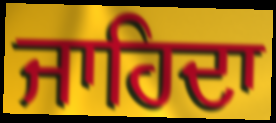
ਜਾਹਿਦਾ